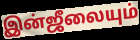
இன்ஜீலையும்